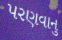
પરણવાનુ